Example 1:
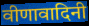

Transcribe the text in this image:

वीणावादिनी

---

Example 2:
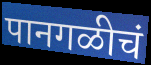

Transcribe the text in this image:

पानगळीचं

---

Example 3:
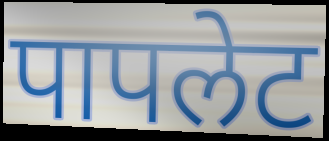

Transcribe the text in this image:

पापलेट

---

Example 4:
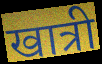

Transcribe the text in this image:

खात्री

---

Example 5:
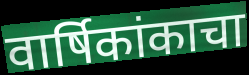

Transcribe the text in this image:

वार्षिकांकाचा